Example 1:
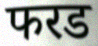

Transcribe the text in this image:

फरड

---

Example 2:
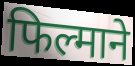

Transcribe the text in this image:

फिल्माने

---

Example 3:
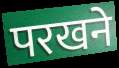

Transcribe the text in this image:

परखने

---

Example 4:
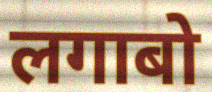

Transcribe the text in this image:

लगाबो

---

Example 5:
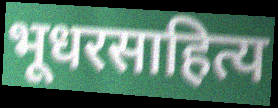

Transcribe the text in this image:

भूधरसाहित्य